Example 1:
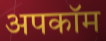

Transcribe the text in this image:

अपकॉम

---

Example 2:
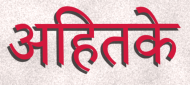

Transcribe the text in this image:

अहितके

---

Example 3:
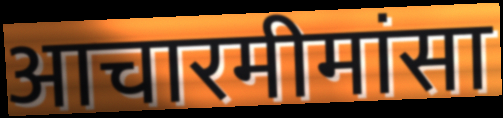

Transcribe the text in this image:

आचारमीमांसा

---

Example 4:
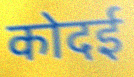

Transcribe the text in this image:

कोदई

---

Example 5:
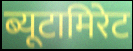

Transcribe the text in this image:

ब्यूटामिरेट